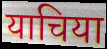
याचिया